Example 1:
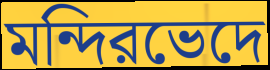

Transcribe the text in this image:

মন্দিরভেদে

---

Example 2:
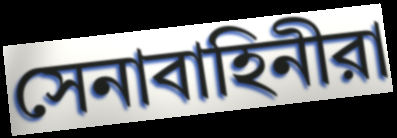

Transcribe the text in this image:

সেনাবাহিনীরা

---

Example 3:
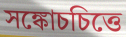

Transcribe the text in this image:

সঙ্কোচচিত্তে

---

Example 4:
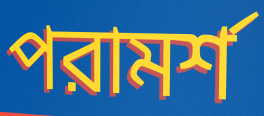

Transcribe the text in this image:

পরামর্শ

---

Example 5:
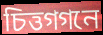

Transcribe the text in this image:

চিত্তগগনে